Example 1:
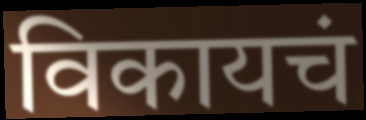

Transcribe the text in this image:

विकायचं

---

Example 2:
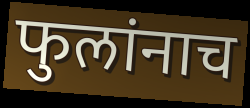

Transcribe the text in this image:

फुलांनाच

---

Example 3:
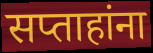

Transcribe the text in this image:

सप्ताहांना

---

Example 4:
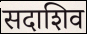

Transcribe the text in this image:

सदाशिव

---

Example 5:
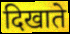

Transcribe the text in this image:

दिखाते